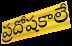
ప్రదోషకాలే